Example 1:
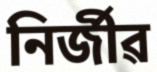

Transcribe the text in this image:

নিৰ্জীৱ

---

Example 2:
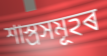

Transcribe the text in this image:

শাস্ত্ৰসমূহৰ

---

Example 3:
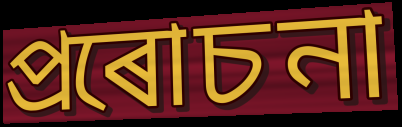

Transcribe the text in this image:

প্ৰৰোচনা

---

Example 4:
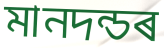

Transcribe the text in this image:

মানদন্ডৰ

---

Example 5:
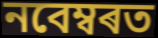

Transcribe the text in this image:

নবেম্বৰত